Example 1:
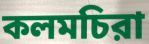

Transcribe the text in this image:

কলমচিরা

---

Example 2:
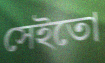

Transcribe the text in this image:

সেইতো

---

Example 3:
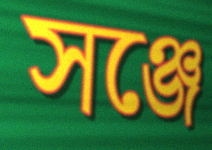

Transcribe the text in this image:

সঞ্জে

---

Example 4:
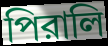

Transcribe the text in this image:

পিরালি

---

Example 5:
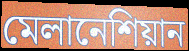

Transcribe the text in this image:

মেলানেশিয়ান